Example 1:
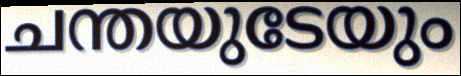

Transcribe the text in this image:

ചന്തയുടേയും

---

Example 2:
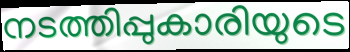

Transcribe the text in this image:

നടത്തിപ്പുകാരിയുടെ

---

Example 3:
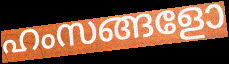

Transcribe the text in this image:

ഹംസങ്ങളോ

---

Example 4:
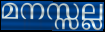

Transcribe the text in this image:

മനസ്സല്ല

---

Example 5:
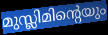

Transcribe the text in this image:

മുസ്ലിമിന്റെയും